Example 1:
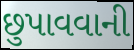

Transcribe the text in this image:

છુપાવવાની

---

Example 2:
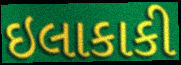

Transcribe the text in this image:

ઇલાકાકી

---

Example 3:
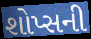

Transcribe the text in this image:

શોપ્સની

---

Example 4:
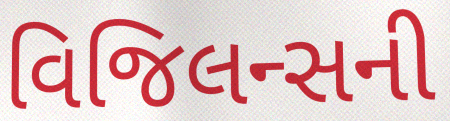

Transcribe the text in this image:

વિજિલન્સની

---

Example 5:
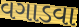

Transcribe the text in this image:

વગાડવા